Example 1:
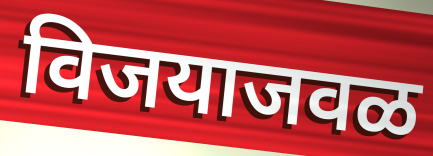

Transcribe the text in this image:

विजयाजवळ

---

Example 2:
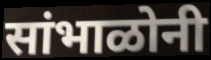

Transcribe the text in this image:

सांभाळोनी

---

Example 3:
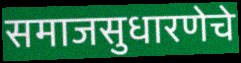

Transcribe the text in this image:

समाजसुधारणेचे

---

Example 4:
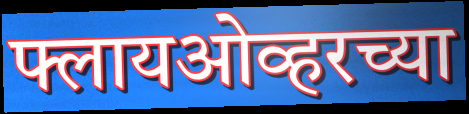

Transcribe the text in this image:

फ्लायओव्हरच्या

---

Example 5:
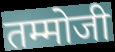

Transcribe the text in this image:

तम्मोजी